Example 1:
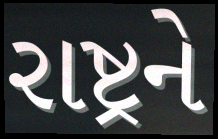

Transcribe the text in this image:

રાષ્ટ્રને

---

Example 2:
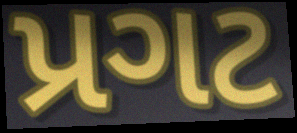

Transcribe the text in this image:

પ્રગટ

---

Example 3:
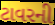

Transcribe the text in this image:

ટાવરની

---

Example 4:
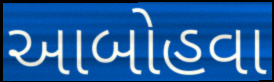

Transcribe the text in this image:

આબોહવા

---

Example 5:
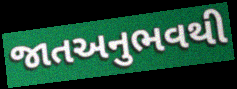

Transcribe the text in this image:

જાતઅનુભવથી